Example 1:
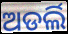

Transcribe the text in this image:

ଅଡର୍ଲି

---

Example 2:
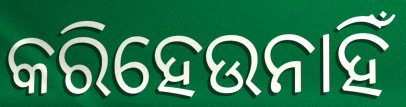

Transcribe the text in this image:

କରିହେଉନାହିଁ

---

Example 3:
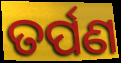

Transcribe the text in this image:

ତର୍ପଣ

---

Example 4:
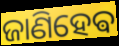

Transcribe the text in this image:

ଜାଣିହେଵ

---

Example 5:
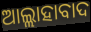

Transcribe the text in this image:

ଆଲ୍ଲାହାବାଦ